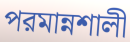
পরমান্নশালী